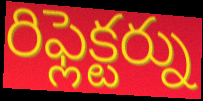
రిఫ్లెక్టర్ను